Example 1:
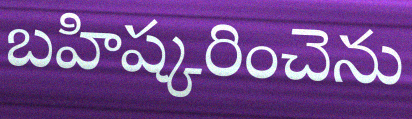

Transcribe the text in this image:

బహిష్కరించెను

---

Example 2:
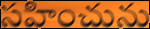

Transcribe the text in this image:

సహించును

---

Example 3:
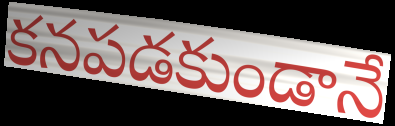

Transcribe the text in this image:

కనపడకుండానే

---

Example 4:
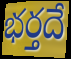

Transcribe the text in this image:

భర్తదే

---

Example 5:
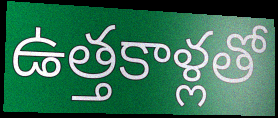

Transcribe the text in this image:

ఉత్తకాళ్లతో